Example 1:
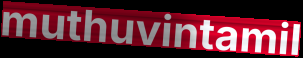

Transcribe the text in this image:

muthuvintamil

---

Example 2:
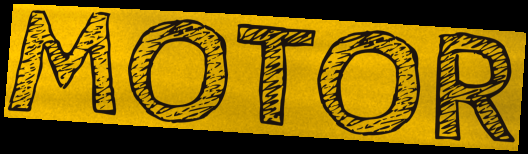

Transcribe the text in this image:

MOTOR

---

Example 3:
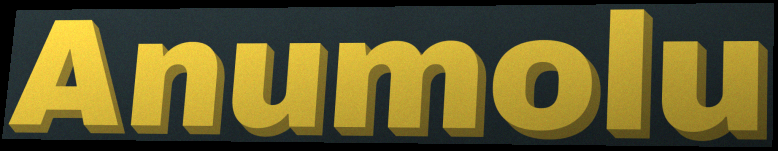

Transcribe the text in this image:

Anumolu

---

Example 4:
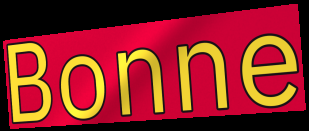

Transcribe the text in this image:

Bonne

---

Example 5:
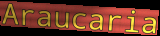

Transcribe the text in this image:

Araucaria